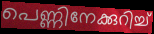
പെണ്ണിനേക്കുറിച്ച്